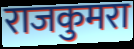
राजकुमरा